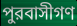
পুরবাসীগণ